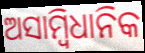
ଅସାମ୍ବିଧାନିକ